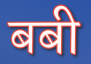
बबी